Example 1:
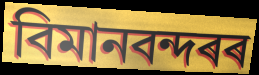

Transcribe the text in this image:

বিমানবন্দৰৰ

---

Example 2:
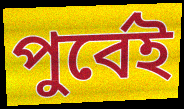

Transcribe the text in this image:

পুৰ্বেই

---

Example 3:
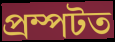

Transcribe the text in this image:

প্ৰম্পটত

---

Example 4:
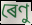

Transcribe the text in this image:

ৰেণু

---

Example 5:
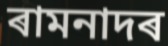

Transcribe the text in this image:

ৰামনাদৰ